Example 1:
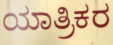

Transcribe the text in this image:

ಯಾತ್ರಿಕರ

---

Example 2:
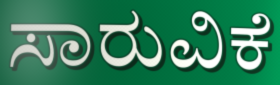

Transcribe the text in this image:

ಸಾರುವಿಕೆ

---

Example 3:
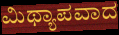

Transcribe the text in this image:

ಮಿಥ್ಯಾಪವಾದ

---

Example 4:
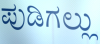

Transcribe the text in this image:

ಪುಡಿಗಲ್ಲು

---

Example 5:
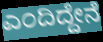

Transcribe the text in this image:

ಎಂದಿದ್ದೇನೆ